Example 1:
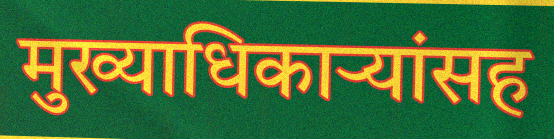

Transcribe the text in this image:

मुख्याधिकाऱ्यांसह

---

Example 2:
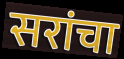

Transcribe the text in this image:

सरांचा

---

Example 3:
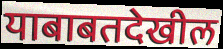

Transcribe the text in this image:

याबाबतदेखील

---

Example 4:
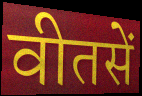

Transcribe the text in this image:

वीतसें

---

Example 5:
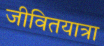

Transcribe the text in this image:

जीवितयात्रा